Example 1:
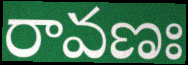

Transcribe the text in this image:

రావణః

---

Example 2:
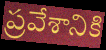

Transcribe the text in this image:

ప్రవేశానికి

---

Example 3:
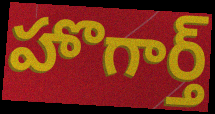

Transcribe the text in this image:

హొగార్త్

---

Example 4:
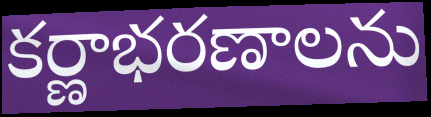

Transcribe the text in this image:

కర్ణాభరణాలను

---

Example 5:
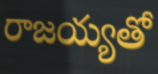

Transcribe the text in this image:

రాజయ్యతో